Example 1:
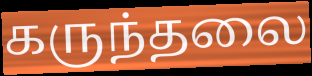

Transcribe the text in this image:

கருந்தலை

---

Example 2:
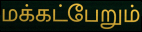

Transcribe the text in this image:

மக்கட்பேறும்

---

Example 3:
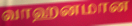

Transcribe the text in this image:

வாஹனமான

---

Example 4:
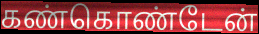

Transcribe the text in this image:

கண்கொண்டேன்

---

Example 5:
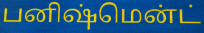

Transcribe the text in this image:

பனிஷ்மென்ட்